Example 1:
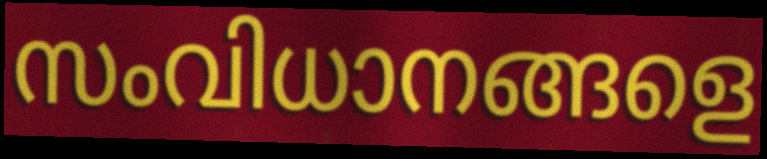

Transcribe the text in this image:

സംവിധാനങ്ങളെ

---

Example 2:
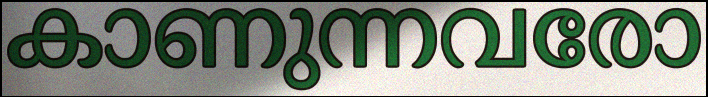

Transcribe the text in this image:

കാണുന്നവരോ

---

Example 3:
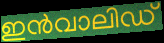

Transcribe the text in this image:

ഇൻവാലിഡ്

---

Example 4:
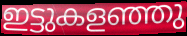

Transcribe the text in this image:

ഇട്ടുകളഞ്ഞു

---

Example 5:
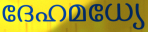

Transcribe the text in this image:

ദേഹമധ്യേ